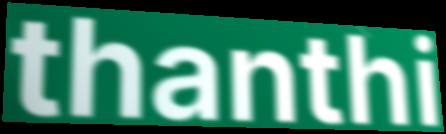
thanthi